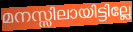
മനസ്സിലായിട്ടില്ലേ